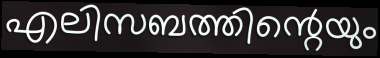
എലിസബത്തിന്റെയും